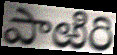
పాఱిరి